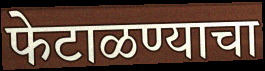
फेटाळण्याचा